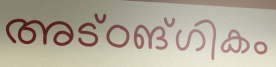
അട്ഠങ്ഗികം